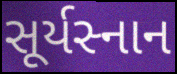
સૂર્યસ્નાન